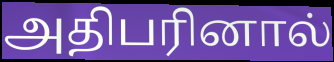
அதிபரினால்